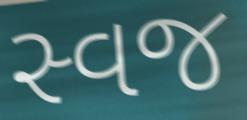
સ્વજ